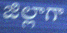
జిల్లాగా